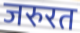
जरुरत